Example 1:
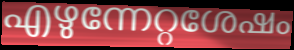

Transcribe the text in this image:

എഴുന്നേറ്റശേഷം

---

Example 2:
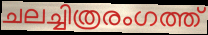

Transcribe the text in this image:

ചലച്ചിത്രരംഗത്ത്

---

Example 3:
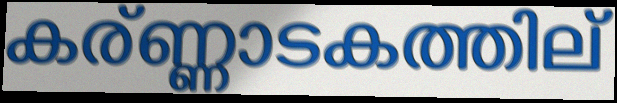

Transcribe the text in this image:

കര്ണ്ണാടകത്തില്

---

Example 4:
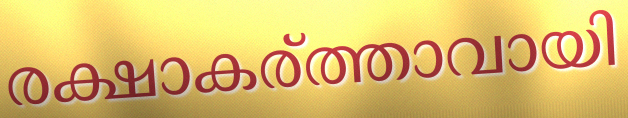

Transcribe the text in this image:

രക്ഷാകര്ത്താവായി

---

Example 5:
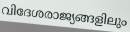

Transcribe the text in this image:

വിദേശരാജ്യങ്ങളിലും